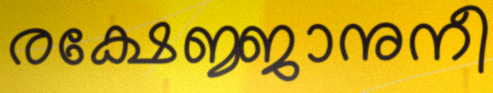
രക്ഷേജ്ജാനുനീ